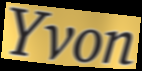
Yvon